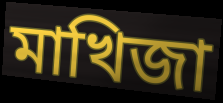
মাখিজা